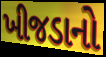
ખીજડાનો